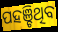
ପହଞ୍ଚିଥିବ